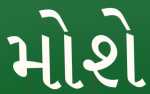
મોશે